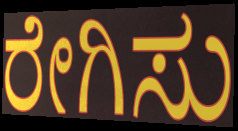
ರೇಗಿಸು